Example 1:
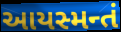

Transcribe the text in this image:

આયસ્મન્તં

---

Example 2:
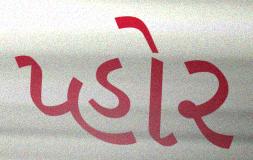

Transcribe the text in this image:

પ્હોર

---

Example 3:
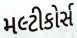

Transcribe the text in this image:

મલ્ટીકોર્સ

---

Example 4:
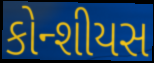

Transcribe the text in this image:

કોન્શીયસ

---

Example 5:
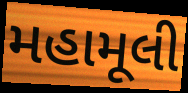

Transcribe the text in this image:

મહામૂલી